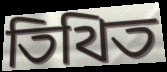
তিথিত